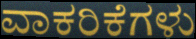
ವಾಕರಿಕೆಗಳು